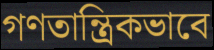
গণতান্ত্রিকভাবে